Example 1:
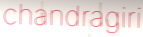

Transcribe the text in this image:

chandragiri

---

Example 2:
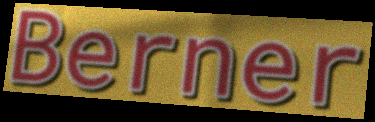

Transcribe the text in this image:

Berner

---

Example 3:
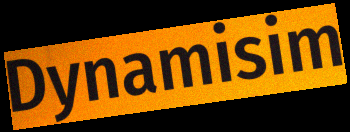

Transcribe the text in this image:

Dynamisim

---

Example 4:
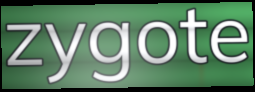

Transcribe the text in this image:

zygote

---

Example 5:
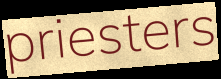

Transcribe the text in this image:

priesters